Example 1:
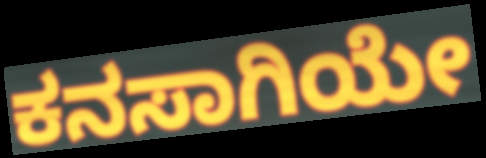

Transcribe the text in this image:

ಕನಸಾಗಿಯೇ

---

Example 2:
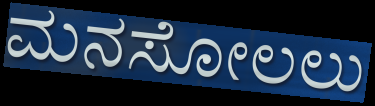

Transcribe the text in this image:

ಮನಸೋಲಲು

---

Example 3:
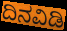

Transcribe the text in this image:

ದಿನವಿಡಿ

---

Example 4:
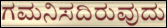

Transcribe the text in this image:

ಗಮನಿಸದಿರುವುದು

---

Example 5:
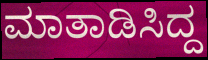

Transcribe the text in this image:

ಮಾತಾಡಿಸಿದ್ದ